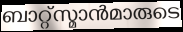
ബാറ്റ്സ്മാൻമാരുടെ